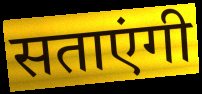
सताएंगी